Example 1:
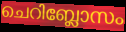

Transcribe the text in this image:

ചെറിബ്ലോസം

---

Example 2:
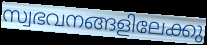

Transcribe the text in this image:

സ്വഭവനങ്ങളിലേക്കു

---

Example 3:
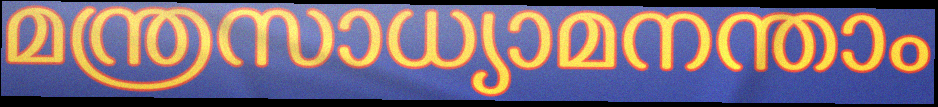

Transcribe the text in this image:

മന്ത്രസാധ്യാമനന്താം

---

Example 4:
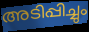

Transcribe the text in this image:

അടിപ്പിച്ചും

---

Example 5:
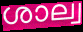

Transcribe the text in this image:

ശാല്വ